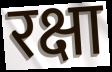
रक्षा